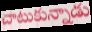
చాటుకున్నాడు